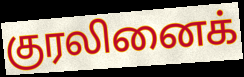
குரலினைக்